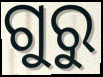
ଗୁରୁ